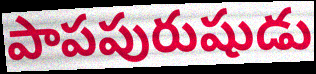
పాపపురుషుడు